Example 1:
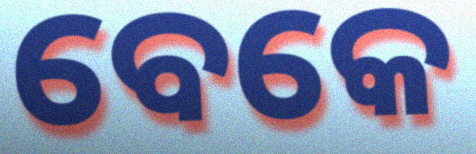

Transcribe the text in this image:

ବେକେ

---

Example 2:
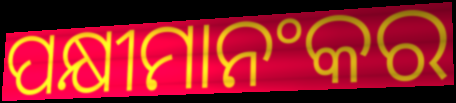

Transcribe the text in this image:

ପକ୍ଷୀମାନଂକର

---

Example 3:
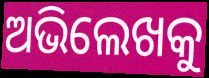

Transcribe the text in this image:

ଅଭିଲେଖକୁ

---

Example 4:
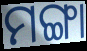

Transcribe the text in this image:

ମଙ୍ଗା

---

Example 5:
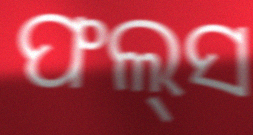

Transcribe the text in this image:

ଫଲ୍‍ସ